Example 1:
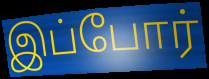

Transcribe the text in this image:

இப்போர்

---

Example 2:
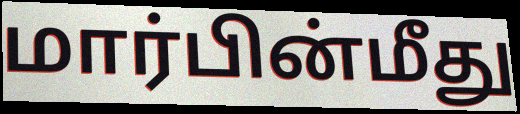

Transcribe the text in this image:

மார்பின்மீது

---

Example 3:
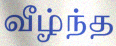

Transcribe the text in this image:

வீழ்ந்த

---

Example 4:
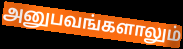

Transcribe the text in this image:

அனுபவங்களாலும்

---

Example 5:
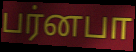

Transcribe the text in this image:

பர்னபா